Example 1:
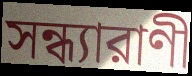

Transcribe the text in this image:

সন্ধ্যারাণী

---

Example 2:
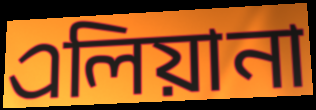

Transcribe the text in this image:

এলিয়ানা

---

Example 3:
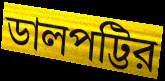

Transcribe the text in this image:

ডালপট্টির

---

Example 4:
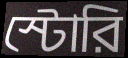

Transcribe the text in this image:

স্টোরি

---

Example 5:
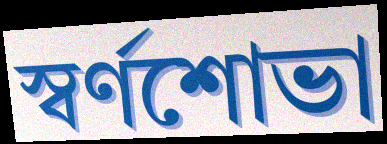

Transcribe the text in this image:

স্বর্ণশোভা